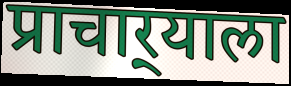
प्राचार्याला